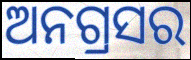
ଅନଗ୍ରସର